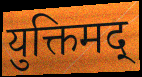
युक्तिमद्